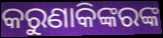
କରୁଣାକିଙ୍କରଙ୍କ